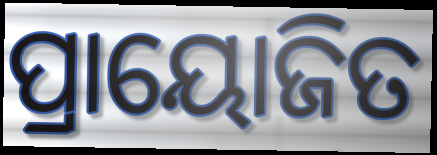
ପ୍ରାୟୋଜିତ